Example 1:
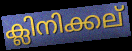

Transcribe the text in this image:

ക്ലിനിക്കല്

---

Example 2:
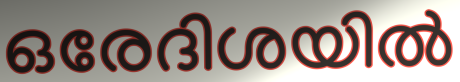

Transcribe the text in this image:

ഒരേദിശയിൽ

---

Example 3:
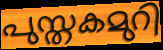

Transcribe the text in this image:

പുസ്തകമുറി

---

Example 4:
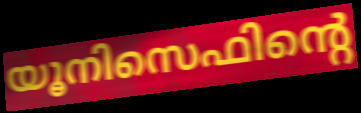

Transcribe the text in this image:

യൂനിസെഫിന്റെ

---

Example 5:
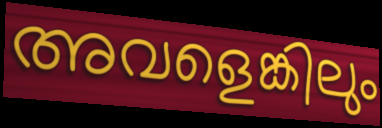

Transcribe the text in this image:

അവളെങ്കിലും